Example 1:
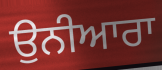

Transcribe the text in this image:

ਉਨੀਆਰਾ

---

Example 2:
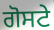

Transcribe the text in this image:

ਗੋਸਟੇ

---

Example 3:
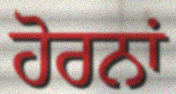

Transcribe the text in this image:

ਹੋਰਨਾਂ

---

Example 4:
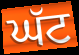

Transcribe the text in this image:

ਘੱਟ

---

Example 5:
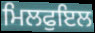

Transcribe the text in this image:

ਮਿਲਫੁਇਲ